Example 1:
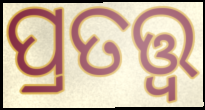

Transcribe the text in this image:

ପ୍ରତତ୍ତ୍ୱ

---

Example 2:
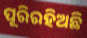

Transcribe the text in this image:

ପୂରିରହିଅଛି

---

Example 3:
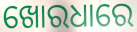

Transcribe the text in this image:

ଖୋରଧାରେ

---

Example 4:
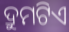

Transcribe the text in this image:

ଦ୍ରୁମଟିଏ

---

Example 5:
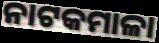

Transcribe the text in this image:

ନାଟକମାଳା